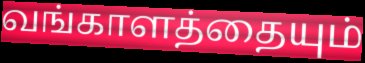
வங்காளத்தையும்